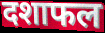
दशाफल